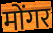
मोंगर